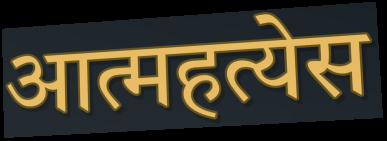
आत्महत्येस